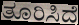
ತೂರಿಸಿದೆ